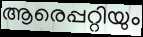
ആരെപ്പറ്റിയും